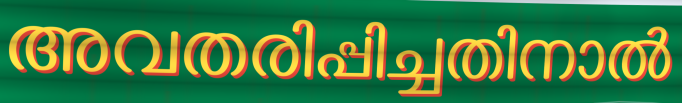
അവതരിപ്പിച്ചതിനാൽ